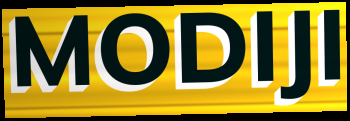
MODIJI